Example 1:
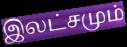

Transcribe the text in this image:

இலட்சமும்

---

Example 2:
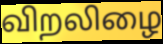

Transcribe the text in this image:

விறலிழை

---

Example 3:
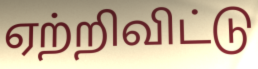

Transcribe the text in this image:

ஏற்றிவிட்டு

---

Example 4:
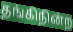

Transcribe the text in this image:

தங்கிநின்ற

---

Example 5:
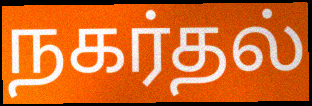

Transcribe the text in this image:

நகர்தல்